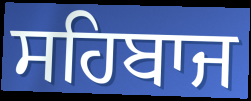
ਸਹਿਬਾਜ